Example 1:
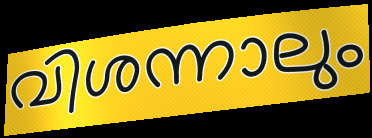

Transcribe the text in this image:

വിശന്നാലും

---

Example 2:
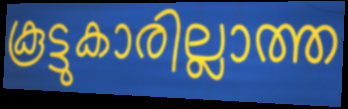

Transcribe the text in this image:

കൂട്ടുകാരില്ലാത്ത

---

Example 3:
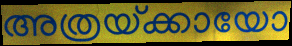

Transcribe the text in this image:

അത്രയ്‌ക്കായോ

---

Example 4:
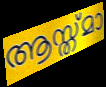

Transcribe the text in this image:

ആസ്ത്മാ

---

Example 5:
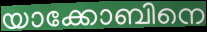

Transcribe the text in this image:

യാക്കോബിനെ